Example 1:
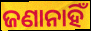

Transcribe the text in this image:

ଜଣାନାହିଁ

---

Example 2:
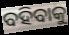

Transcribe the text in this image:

ବହିବାକୁ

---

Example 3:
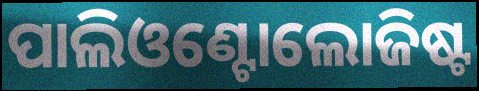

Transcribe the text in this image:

ପାଲିଓଣ୍ଟୋଲୋଜିଷ୍ଟ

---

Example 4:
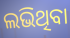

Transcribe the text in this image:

ଲଭିଥିବା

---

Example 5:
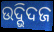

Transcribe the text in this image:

ଉଦ୍ଭିଦଜ